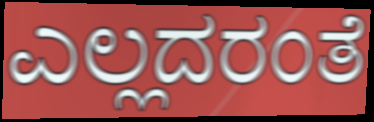
ಎಲ್ಲದರಂತೆ